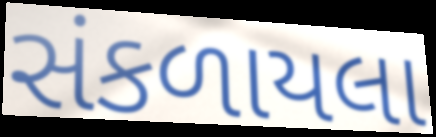
સંકળાયલા